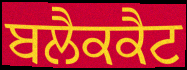
ਬਲੈਕਕੈਟ